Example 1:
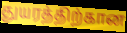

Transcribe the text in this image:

துயரத்திற்கான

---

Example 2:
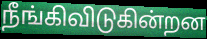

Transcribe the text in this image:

நீங்கிவிடுகின்றன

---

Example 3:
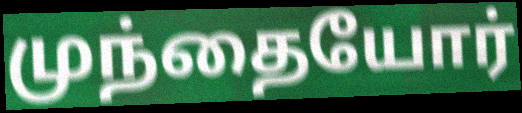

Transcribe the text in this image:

முந்தையோர்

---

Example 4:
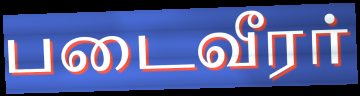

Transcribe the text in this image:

படைவீரர்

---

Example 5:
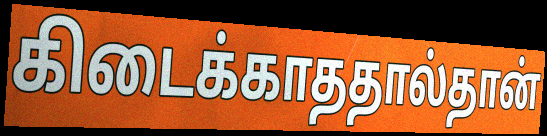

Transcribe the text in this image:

கிடைக்காததால்தான்